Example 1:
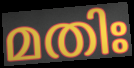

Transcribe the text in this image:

മതിഃ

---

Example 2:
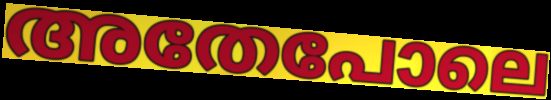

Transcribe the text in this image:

അതേപോലെ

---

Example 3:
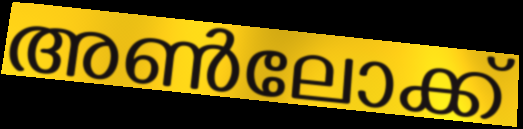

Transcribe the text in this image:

അൺലോക്ക്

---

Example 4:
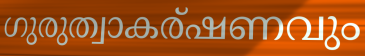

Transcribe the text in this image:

ഗുരുത്വാകര്ഷണവും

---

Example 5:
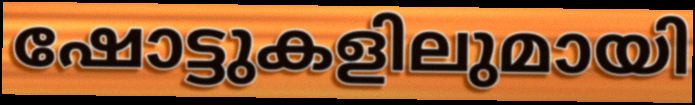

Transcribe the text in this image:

ഷോട്ടുകളിലുമായി